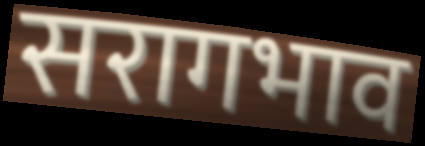
सरागभाव